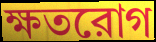
ক্ষতরোগ